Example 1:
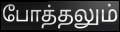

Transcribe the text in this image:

போத்தலும்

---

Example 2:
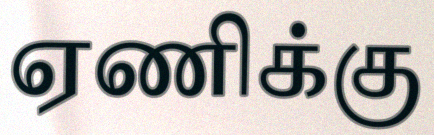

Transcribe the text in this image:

ஏணிக்கு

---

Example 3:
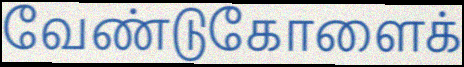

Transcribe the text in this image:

வேண்டுகோளைக்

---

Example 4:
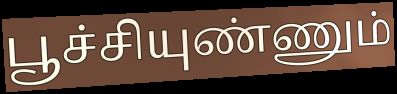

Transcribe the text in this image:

பூச்சியுண்ணும்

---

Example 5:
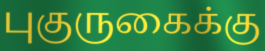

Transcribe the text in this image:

புகுருகைக்கு